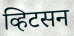
व्हिटसन